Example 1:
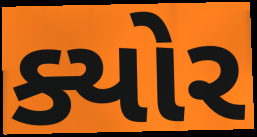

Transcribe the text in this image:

ક્યોર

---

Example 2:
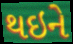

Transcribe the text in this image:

થઇને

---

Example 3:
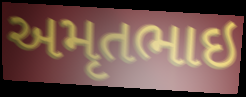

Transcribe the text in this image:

અમૃતભાઇ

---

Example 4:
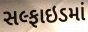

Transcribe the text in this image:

સલ્ફાઇડમાં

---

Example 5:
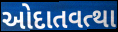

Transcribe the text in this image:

ઓદાતવત્થા